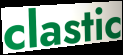
clastic